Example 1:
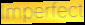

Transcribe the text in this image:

Imperfect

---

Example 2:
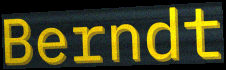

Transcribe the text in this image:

Berndt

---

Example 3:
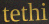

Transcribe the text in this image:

tethi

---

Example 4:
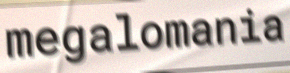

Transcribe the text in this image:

megalomania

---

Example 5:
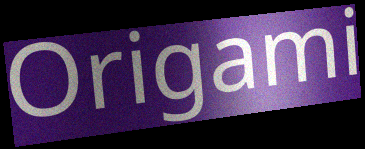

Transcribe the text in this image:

Origami